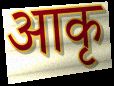
आकृ